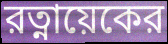
রত্নায়েকের